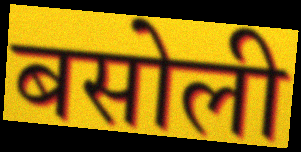
बसोली